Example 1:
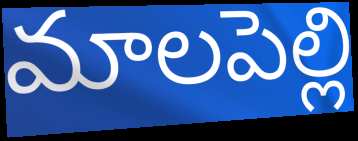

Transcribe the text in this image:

మాలపెల్లి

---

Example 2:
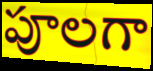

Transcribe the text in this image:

పూలగా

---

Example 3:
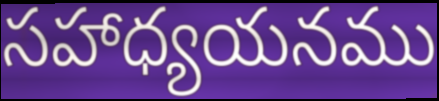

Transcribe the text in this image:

సహాధ్యయనము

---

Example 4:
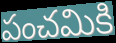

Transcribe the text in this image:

పంచమికి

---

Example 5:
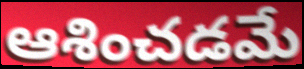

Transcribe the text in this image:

ఆశించడమే